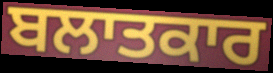
ਬਲਾਤਕਾਰ